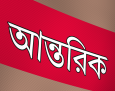
আন্তরিক